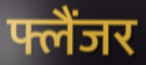
फ्लैंजर